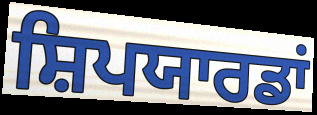
ਸ਼ਿਪਯਾਰਡਾਂ